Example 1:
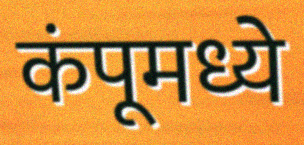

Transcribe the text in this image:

कंपूमध्ये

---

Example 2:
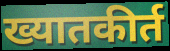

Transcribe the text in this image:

ख्यातकीर्त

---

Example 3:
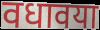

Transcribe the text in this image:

वधावया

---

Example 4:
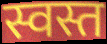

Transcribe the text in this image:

स्वस्त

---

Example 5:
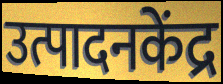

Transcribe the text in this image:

उत्पादनकेंद्र